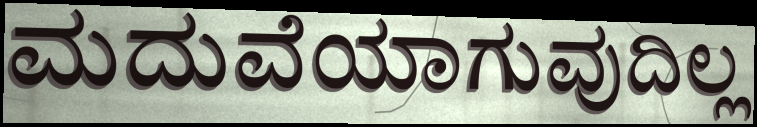
ಮದುವೆಯಾಗುವುದಿಲ್ಲ